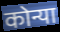
कोन्या